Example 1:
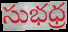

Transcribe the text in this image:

సుభధ్ర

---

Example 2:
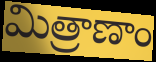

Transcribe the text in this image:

మిత్రాణాం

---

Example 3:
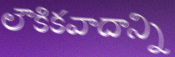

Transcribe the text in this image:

లౌకికవాదాన్ని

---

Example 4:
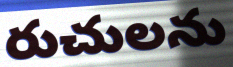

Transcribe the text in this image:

రుచులను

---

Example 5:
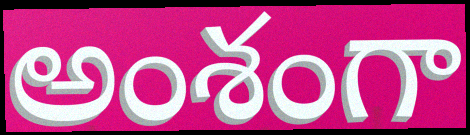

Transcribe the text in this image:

అంశంగా